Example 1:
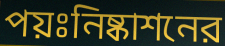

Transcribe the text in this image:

পয়ঃনিষ্কাশনের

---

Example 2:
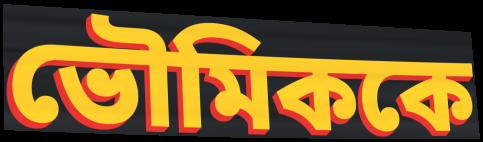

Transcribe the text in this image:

ভৌমিককে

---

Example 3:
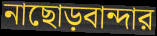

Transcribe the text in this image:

নাছোড়বান্দার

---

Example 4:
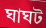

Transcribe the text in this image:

ঘাঘট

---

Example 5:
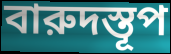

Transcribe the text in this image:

বারুদস্তূপ